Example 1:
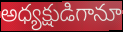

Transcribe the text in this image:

అధ్యక్షుడిగానూ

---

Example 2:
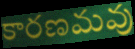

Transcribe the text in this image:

కారణమవు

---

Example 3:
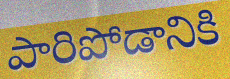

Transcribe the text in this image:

పారిపోడానికి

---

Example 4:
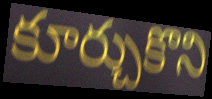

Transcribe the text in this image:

కూర్చుకొని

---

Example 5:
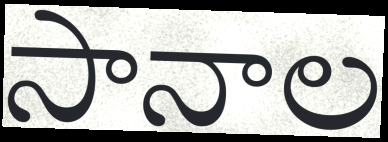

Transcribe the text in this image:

సానాల